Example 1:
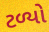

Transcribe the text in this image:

ટળ્યો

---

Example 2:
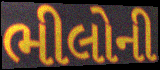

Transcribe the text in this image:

ભીલોની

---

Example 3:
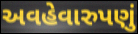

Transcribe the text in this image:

અવહેવારુપણું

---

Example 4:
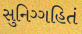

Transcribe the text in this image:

સુનિગ્ગહિતં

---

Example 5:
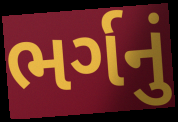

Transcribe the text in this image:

ભર્ગનું